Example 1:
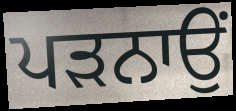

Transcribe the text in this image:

ਪਡ਼ਨਾਉਂ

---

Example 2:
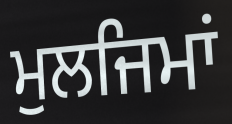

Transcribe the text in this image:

ਮੁਲਜਿਮਾਂ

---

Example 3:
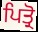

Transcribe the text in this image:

ਪਿਤ੍ਰੋ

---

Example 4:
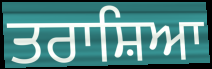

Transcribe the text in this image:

ਤਰਾਸ਼ਿਆ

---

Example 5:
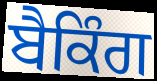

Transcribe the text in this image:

ਬੈਕਿੰਗ